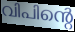
വിപിന്റെ